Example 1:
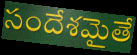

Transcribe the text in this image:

సందేశమైతే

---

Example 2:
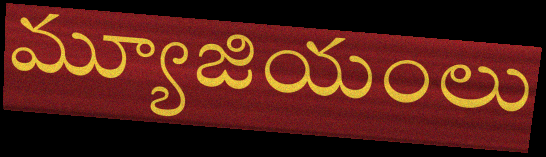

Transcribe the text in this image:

మ్యూజియంలు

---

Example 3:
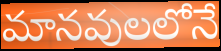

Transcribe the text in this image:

మానవులలోనే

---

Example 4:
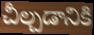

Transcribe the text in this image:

చీల్చడానికి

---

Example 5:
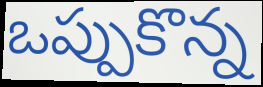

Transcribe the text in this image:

ఒప్పుకొన్న